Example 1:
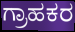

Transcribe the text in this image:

ಗ್ರಾಹಕರ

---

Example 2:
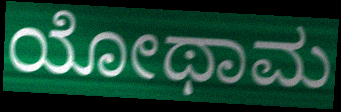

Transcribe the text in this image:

ಯೋಥಾಮ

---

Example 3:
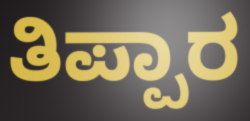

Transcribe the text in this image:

ತಿಪ್ಪಾರ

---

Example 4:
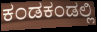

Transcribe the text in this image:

ಕಂಡಕಂಡಲ್ಲಿ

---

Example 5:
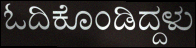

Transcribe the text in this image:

ಓದಿಕೊಂಡಿದ್ದಳು